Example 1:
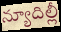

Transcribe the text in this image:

న్యూదిల్లీ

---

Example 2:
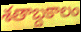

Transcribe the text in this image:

శతాబ్దకాలం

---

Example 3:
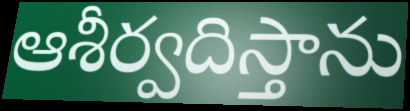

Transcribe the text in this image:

ఆశీర్వదిస్తాను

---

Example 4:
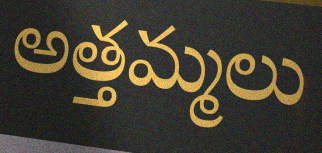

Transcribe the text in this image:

అత్తమ్మలు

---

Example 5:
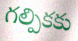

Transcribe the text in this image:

గల్పికకు